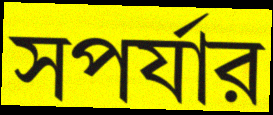
সপর্যার